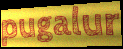
pugalur